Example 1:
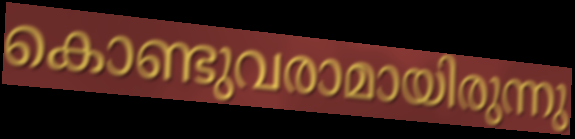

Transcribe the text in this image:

കൊണ്ടുവരാമായിരുന്നു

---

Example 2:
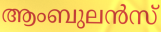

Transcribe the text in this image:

ആംബുലൻസ്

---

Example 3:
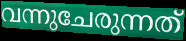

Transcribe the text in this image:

വന്നുചേരുന്നത്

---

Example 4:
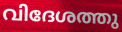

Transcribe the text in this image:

വിദേശത്തു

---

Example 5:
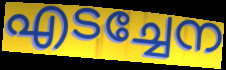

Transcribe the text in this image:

എടച്ചേന